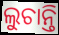
ଲୁଚାନ୍ତି